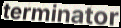
terminator